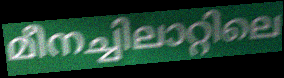
മീനച്ചിലാറ്റിലെ